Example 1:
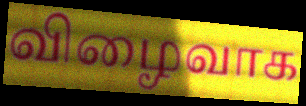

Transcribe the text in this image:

விழைவாக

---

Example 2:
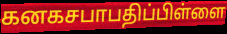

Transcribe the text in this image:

கனகசபாபதிப்பிள்ளை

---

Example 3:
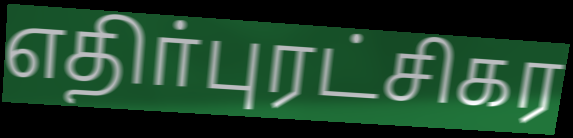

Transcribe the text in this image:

எதிர்புரட்சிகர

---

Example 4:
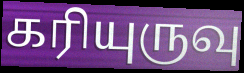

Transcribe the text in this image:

கரியுருவு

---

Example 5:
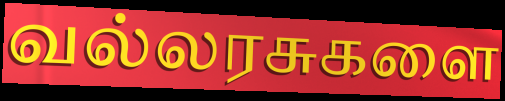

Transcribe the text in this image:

வல்லரசுகளை